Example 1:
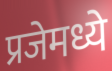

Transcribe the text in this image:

प्रजेमध्ये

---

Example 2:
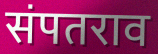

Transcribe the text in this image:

संपतराव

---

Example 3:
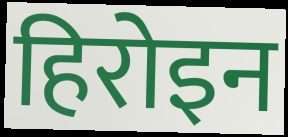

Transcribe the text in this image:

हिरोइन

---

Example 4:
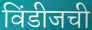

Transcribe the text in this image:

विंडीजची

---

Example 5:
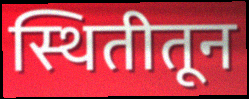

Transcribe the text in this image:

स्थितीतून